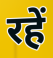
रहें